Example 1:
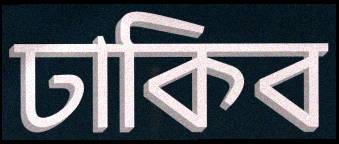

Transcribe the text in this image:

ঢাকিব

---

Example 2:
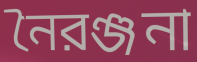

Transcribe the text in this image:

নৈরঞ্জনা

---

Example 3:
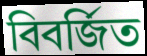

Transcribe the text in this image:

বিবর্জিত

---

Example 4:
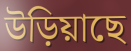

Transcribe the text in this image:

উড়িয়াছে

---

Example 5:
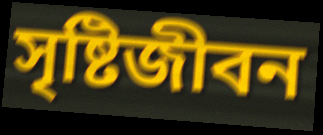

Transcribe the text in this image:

সৃষ্টিজীবন